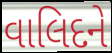
વાલિદને